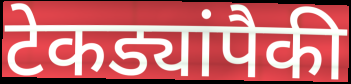
टेकड्यांपैकी